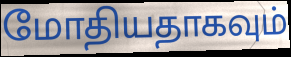
மோதியதாகவும்